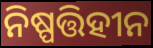
ନିଷ୍ପତ୍ତିହୀନ